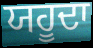
ਯਹੂਦਾ